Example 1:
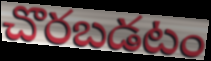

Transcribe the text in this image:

చొరబడటం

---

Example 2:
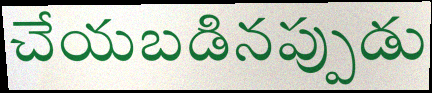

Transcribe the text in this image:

చేయబడినప్పుడు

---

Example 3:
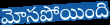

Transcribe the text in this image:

మోసపోయింది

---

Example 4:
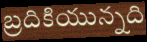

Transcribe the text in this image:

బ్రదికియున్నది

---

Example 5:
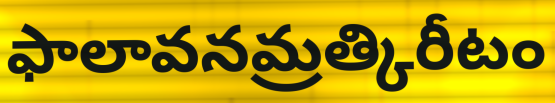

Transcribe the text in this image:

ఫాలావనమ్రత్కిరీటం